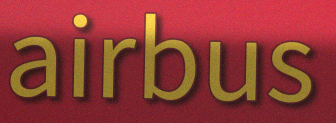
airbus